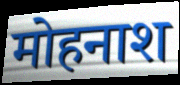
मोहनाश